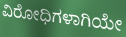
ವಿರೋಧಿಗಳಾಗಿಯೇ